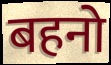
बहनो